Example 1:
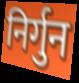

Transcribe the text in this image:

निर्गुन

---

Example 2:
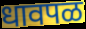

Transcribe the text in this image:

धावपळ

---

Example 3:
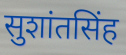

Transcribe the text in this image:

सुशांतसिंह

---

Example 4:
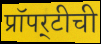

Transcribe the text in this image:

प्रॉपर्टीची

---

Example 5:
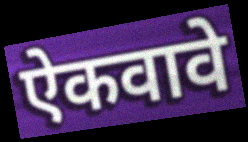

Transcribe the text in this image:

ऐकवावे